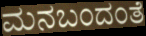
ಮನಬಂದಂತೆ